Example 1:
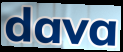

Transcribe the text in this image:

dava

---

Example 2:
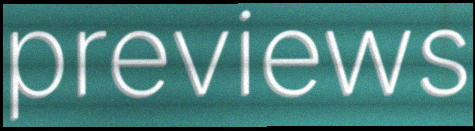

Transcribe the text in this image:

previews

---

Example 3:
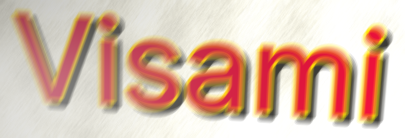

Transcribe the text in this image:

Visami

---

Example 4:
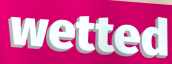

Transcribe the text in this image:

wetted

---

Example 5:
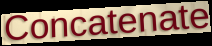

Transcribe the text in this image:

Concatenate